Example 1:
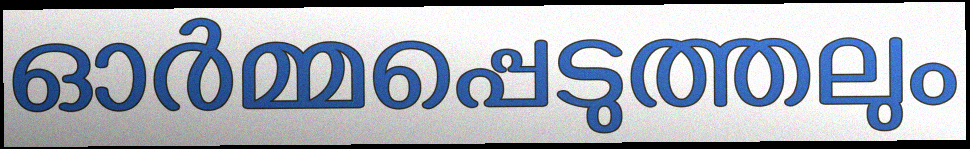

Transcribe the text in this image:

ഓർമ്മപ്പെടുത്തലും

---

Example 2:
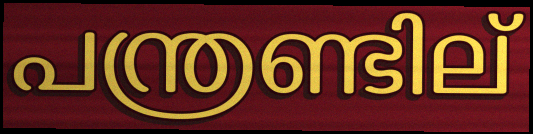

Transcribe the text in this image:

പന്ത്രണ്ടില്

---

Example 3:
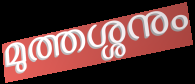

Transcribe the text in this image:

മുത്തശ്ശനും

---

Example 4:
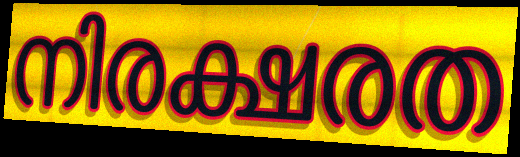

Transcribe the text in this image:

നിരക്ഷരത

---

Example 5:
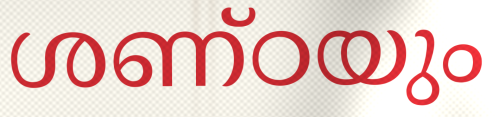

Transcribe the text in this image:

ശണ്ഠയും